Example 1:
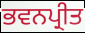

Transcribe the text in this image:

ਭਵਨਪ੍ਰੀਤ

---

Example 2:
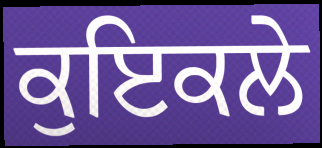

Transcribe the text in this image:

ਕੁਇਕਲੇ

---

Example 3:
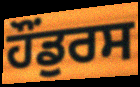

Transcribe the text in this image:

ਹੌਂਡੁਰਸ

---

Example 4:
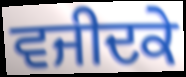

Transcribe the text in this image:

ਵਜੀਦਕੇ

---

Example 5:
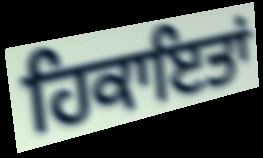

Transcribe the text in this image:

ਹਿਕਾਇਤਾਂ